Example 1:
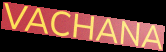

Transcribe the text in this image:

VACHANA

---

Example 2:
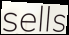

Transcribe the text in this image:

sells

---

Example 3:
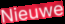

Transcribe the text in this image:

Nieuwe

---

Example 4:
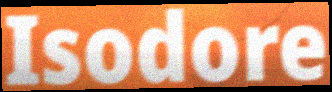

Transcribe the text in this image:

Isodore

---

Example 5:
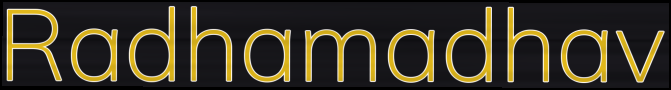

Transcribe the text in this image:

Radhamadhav